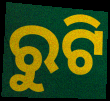
ରୁଟି